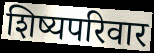
शिष्यपरिवार